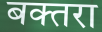
बक्तरा